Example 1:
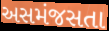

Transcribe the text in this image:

અસમંજસતા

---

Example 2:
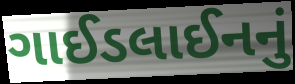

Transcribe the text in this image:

ગાઈડલાઈનનું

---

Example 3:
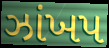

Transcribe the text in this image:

ઝાંખપ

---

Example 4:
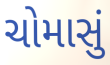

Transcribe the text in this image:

ચોમાસું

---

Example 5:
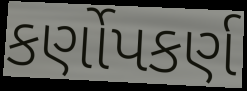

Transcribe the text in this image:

કર્ણોપકર્ણ